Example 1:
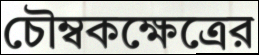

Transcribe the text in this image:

চৌম্বকক্ষেত্রের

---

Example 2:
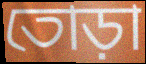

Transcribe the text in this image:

তোড়া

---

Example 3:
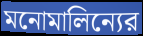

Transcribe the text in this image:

মনোমালিন্যের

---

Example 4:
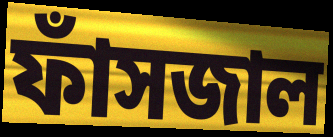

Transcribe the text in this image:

ফাঁসজাল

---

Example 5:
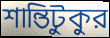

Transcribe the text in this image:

শান্তিটুকুর